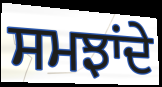
ਸਮਝਾਂਦੇ